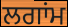
ਲਗਾਂਮ